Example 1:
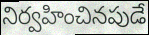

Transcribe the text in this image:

నిర్వహించినపుడే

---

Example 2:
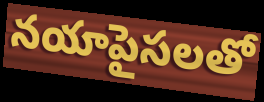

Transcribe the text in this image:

నయాపైసలతో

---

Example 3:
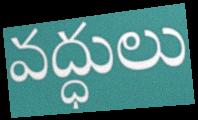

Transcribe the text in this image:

వద్ధులు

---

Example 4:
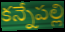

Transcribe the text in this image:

కన్నేపల్లి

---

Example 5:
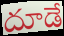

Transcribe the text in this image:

దూడే